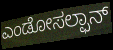
ಎಂಡೋಸಲ್ಫಾನ್